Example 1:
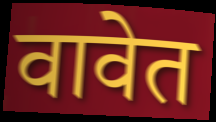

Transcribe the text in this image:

वावेत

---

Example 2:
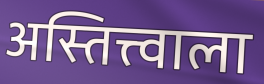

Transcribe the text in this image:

अस्तित्त्वाला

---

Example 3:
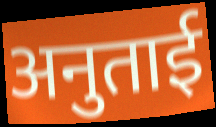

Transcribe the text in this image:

अनुताई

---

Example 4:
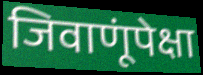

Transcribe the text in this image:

जिवाणूंपेक्षा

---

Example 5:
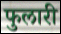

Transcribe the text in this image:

फुलारी